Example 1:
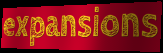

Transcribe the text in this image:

expansions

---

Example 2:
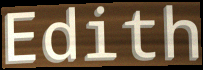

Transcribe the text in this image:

Edith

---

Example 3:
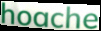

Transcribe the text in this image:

hoache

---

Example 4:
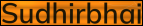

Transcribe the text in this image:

Sudhirbhai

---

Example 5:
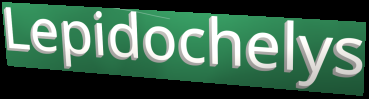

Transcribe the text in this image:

Lepidochelys